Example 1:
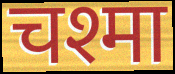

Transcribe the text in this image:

चश्मा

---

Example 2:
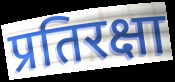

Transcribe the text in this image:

प्रतिरक्षा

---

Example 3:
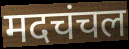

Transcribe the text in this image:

मदचंचल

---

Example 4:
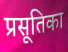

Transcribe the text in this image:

प्रसूतिका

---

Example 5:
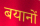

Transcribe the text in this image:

बयानों